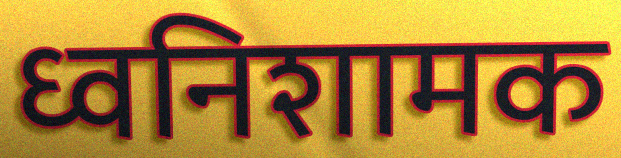
ध्वनिशामक